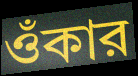
ওঁকার